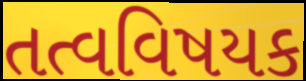
તત્વવિષયક